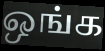
ஒங்க